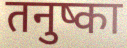
तनुष्का